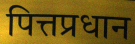
पित्तप्रधान